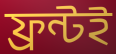
ফ্রন্টই